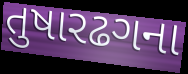
તુષારઢગના